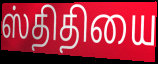
ஸ்திதியை